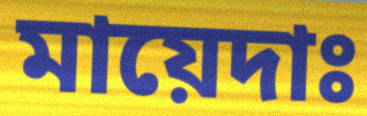
মায়েদাঃ